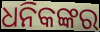
ଧନିକଙ୍କର